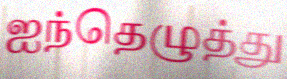
ஐந்தெழுத்து